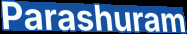
Parashuram